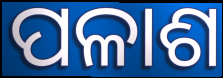
ପଳାଶ